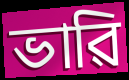
ভাৱি